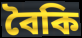
বৈকি